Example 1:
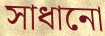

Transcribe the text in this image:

সাধানো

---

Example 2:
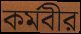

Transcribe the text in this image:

কর্মবীর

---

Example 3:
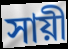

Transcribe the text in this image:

সায়ী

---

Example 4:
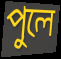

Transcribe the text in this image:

পুলে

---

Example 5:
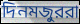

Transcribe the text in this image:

দিনমজুররা